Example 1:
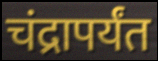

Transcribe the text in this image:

चंद्रापर्यंत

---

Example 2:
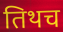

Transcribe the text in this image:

तिथच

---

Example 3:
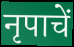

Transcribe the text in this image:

नृपाचें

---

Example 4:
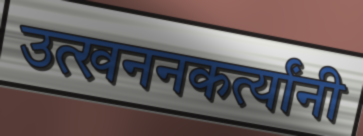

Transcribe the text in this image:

उत्खननकर्त्यांनी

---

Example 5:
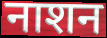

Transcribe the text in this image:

नाशन